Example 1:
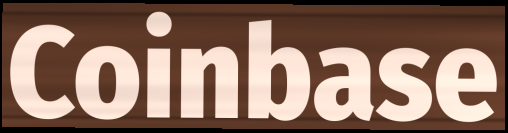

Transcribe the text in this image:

Coinbase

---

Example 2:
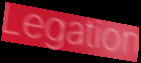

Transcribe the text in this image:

Legation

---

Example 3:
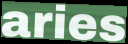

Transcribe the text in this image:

aries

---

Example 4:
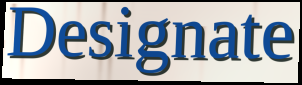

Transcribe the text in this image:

Designate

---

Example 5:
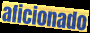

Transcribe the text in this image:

aficionado